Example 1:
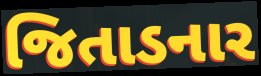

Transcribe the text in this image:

જિતાડનાર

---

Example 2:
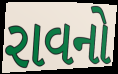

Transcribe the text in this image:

રાવનો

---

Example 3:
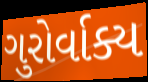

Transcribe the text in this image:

ગુરોર્વાક્ય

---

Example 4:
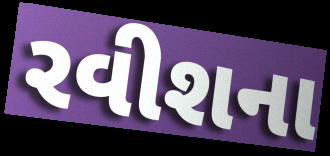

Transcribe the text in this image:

રવીશના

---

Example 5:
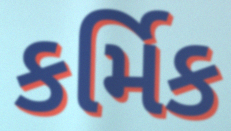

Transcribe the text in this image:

કર્મિક